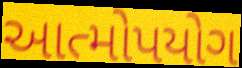
આત્મોપયોગ